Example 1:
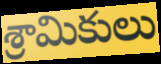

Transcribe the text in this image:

శ్రామికులు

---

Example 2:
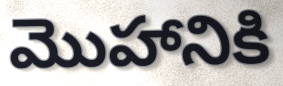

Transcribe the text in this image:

మొహానికి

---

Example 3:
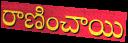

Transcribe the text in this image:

రాణించాయి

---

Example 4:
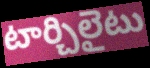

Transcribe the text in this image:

టార్చిలైటు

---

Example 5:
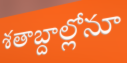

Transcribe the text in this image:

శతాబ్దాల్లోనూ